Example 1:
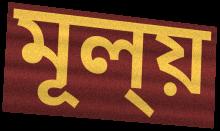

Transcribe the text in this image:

মূল্য়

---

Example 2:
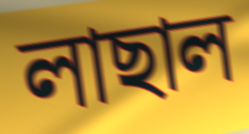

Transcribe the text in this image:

লাছাল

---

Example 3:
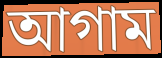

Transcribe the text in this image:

আগাম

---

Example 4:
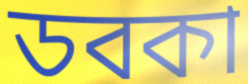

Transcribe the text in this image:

ডবকা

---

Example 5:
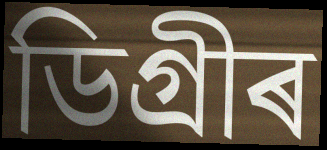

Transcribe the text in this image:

ডিগ্ৰীৰ